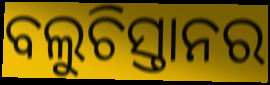
ବଲୁଚିସ୍ତାନର